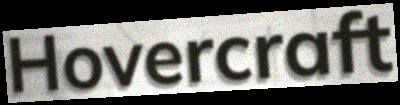
Hovercraft